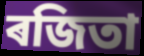
ৰজিতা